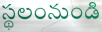
స్థలంనుండి